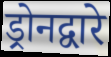
ड्रोनद्वारे